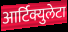
आर्टिक्युलेटा